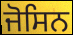
ਜੋਸਿਨ